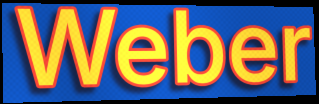
Weber